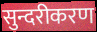
सुन्दरीकरण